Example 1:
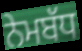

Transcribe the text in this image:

ਨੇਮਬੱਧ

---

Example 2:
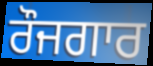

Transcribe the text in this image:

ਰੌਜਗਾਰ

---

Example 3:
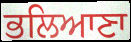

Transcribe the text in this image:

ਭਲਿਆਣਾ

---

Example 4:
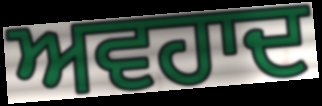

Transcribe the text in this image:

ਅਵਹਾਦ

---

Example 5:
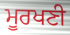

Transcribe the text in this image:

ਮੂਰਖਣੀ